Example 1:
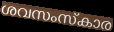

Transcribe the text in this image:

ശവസംസ്‌കാര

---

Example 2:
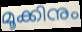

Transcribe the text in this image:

മൂക്കിനും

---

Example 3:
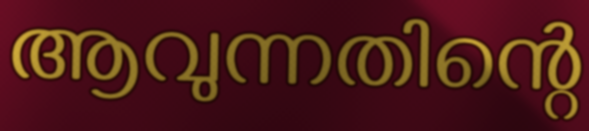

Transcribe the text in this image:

ആവുന്നതിന്റെ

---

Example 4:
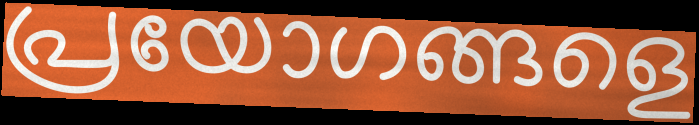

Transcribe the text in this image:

പ്രയോഗങ്ങളെ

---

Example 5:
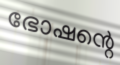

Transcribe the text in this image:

ഭോഷന്റെ